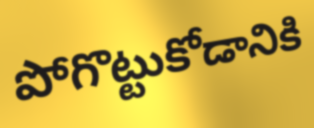
పోగొట్టుకోడానికి